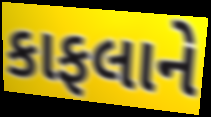
કાફલાને